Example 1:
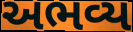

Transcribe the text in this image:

અભવ્ય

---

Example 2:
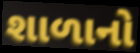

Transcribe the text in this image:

શાળાનો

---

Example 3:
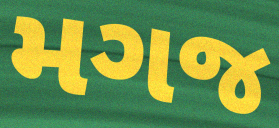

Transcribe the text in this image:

મગજ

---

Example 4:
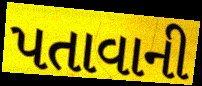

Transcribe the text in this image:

પતાવાની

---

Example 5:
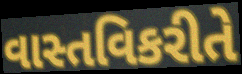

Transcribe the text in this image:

વાસ્તવિકરીતે